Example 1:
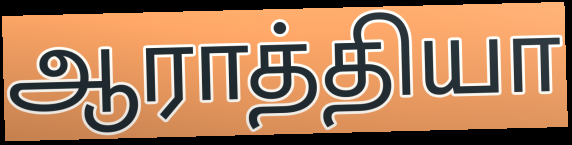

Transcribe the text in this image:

ஆராத்தியா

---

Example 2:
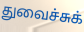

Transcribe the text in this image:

துவைச்சுக்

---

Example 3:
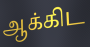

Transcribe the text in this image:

ஆக்கிட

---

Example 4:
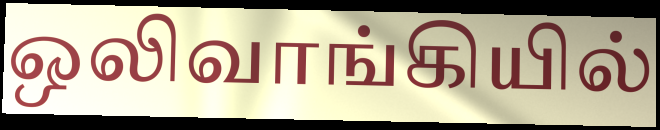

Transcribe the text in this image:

ஒலிவாங்கியில்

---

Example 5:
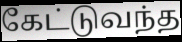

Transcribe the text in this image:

கேட்டுவந்த